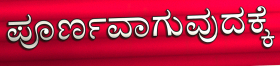
ಪೂರ್ಣವಾಗುವುದಕ್ಕೆ